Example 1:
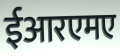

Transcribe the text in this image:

ईआरएमए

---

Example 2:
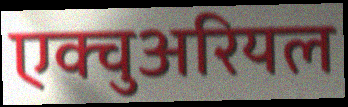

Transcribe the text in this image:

एक्चुअरियल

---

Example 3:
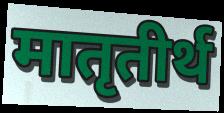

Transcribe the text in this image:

मातृतीर्थ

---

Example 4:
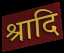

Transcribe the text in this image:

श्रादि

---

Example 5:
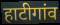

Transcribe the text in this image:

हाटीगांव